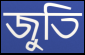
জুতি